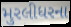
મુરલીધરના